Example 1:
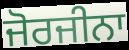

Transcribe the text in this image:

ਜੋਰਜੀਨਾ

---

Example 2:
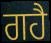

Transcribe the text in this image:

ਗਹੈ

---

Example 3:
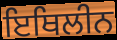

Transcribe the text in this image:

ਇਥਿਲੀਨ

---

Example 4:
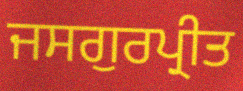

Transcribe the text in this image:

ਜਸਗੁਰਪ੍ਰੀਤ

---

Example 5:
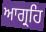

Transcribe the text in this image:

ਆਗ੍ਰਹਿ